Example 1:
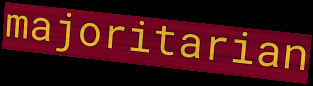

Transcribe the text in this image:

majoritarian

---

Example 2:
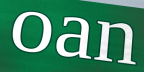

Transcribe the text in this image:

oan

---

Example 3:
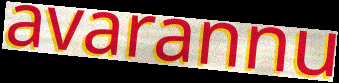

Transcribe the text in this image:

avarannu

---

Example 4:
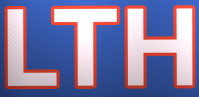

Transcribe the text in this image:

LTH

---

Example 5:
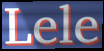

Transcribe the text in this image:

Lele